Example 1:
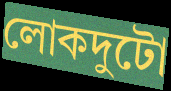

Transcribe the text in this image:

লোকদুটো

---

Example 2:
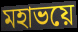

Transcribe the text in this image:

মহাভয়ে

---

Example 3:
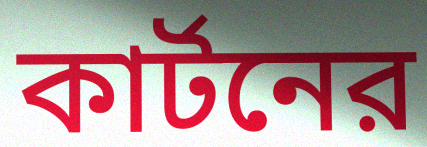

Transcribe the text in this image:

কার্টনের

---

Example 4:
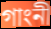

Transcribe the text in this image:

গাংনী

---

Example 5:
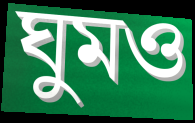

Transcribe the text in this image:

ঘুমও